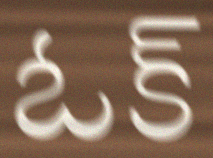
ఓక్